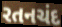
રતનચંદ